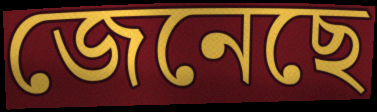
জেনেছে